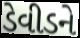
ડેવીડને